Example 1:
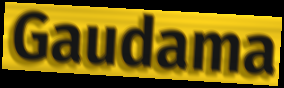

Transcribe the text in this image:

Gaudama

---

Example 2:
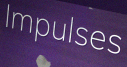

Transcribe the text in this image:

Impulses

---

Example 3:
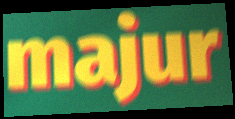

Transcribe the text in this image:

majur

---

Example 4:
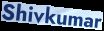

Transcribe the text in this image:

Shivkumar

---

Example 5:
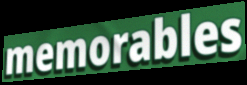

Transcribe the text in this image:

memorables